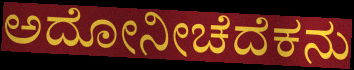
ಅದೋನೀಚೆದೆಕನು